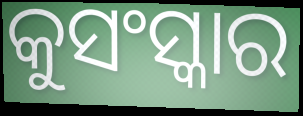
କୁସଂସ୍କାର